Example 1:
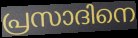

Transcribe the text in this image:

പ്രസാദിനെ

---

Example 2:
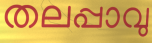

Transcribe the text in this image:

തലപ്പാവു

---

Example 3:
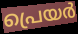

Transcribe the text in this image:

പ്രെയർ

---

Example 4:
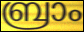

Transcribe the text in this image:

ബ്രാം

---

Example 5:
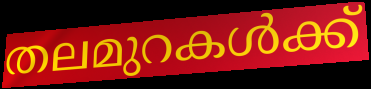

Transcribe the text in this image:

തലമുറകൾക്ക്